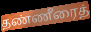
தண்ணீரைத்